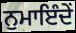
ਨੁਮਾਇੰਦੇਂ